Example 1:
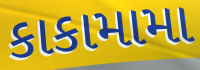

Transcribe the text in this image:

કાકામામા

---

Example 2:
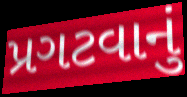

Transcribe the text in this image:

પ્રગટવાનું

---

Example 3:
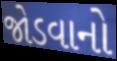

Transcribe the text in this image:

જોડવાનો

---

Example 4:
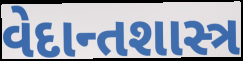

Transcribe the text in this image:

વેદાન્તશાસ્ત્ર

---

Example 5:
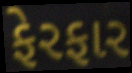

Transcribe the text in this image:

ફેરફાર